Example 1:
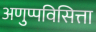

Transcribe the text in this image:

अणुप्पविसित्ता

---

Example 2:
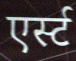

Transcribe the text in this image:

एर्स्ट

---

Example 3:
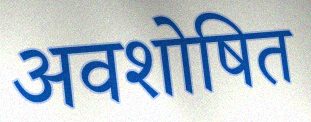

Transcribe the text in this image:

अवशोषित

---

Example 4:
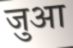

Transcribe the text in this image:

जुआ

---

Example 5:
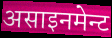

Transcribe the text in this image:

असाइनमेन्ट